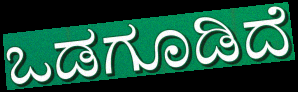
ಒಡಗೂಡಿದೆ